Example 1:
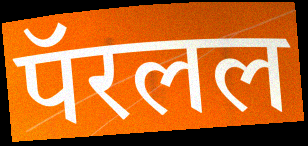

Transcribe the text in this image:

पॅरलल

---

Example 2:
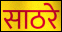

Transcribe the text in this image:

साठरे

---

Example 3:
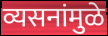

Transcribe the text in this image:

व्यसनांमुळे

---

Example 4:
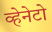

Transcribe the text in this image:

व्हेनेटो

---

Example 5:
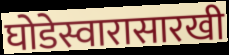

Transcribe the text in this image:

घोडेस्वारासारखी